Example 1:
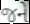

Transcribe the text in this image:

જને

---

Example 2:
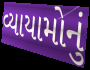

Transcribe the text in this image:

વ્યાયામોનું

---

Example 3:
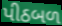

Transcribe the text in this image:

પીઠબળ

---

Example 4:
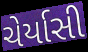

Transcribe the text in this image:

ચેર્યાસી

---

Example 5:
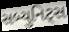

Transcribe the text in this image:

સબ્યુનિટ્સ